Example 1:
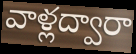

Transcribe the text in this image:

వాళ్లద్వారా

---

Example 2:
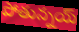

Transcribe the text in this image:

పోతున్నయ్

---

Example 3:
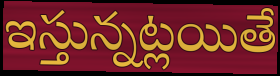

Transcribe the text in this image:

ఇస్తున్నట్లయితే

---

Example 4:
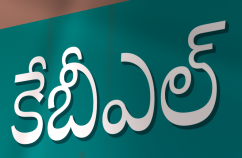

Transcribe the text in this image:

కేబీఎల్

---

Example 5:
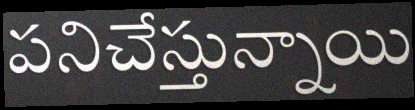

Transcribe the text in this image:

పనిచేస్తున్నాయి